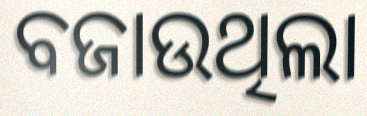
ବଜାଉଥିଲା